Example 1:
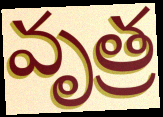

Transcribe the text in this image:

వృత్ర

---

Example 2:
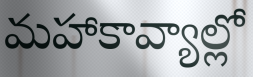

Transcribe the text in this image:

మహాకావ్యాల్లో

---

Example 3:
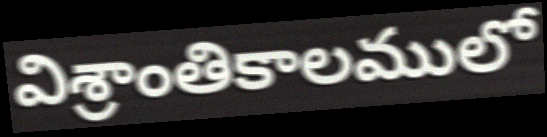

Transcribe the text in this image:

విశ్రాంతికాలములో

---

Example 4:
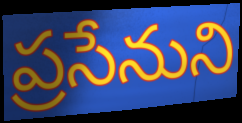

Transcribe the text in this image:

ప్రసేనుని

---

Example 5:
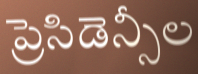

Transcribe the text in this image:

ప్రెసిడెన్సీల